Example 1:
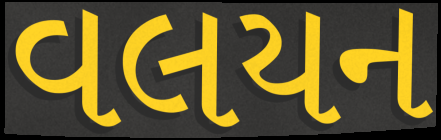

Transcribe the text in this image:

વલયન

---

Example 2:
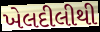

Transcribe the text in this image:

ખેલદીલીથી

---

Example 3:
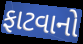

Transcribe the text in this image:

ફાટવાનો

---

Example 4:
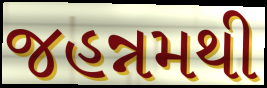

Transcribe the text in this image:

જહન્નમથી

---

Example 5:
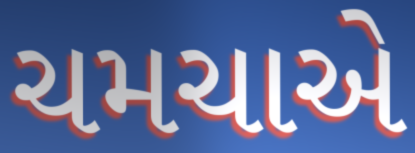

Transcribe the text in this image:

ચમચાએ